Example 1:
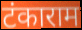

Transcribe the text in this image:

टंकाराम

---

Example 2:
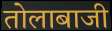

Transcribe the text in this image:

तोलाबाजी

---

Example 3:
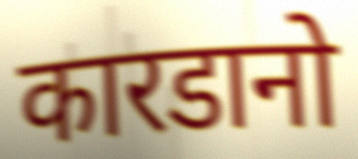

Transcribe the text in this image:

कारडानो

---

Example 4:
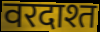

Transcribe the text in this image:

वरदाश्त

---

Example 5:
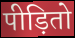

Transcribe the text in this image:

पीड़ितो